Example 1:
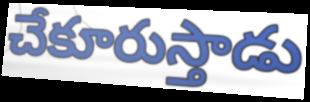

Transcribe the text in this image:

చేకూరుస్తాడు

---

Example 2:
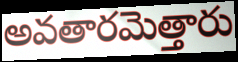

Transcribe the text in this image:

అవతారమెత్తారు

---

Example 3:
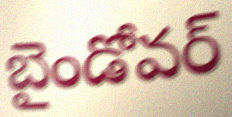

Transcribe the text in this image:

బైండోవర్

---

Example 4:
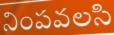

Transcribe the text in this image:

నింపవలసి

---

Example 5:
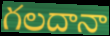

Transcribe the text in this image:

గలదానా